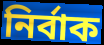
নিৰ্বাক